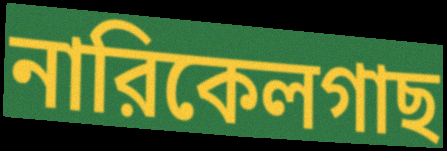
নারিকেলগাছ